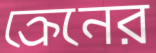
ক্রেনের